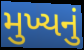
મુખ્યનું